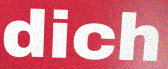
dich